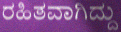
ರಹಿತವಾಗಿದ್ದು